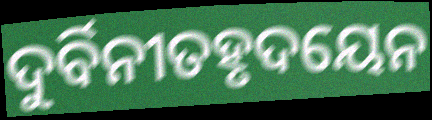
ଦୁର୍ବିନୀତହୃଦୟେନ